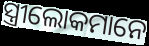
ସ୍ତ୍ରୀଲୋକମାନେ